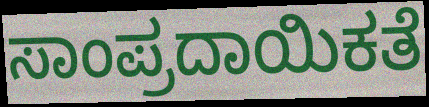
ಸಾಂಪ್ರದಾಯಿಕತೆ